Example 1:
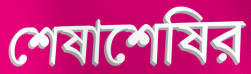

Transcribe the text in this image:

শেষাশেষির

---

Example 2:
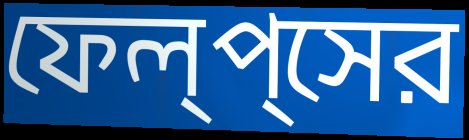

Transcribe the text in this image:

ফেল্‌প্‌সের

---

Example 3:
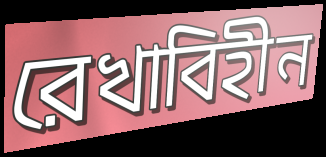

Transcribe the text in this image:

রেখাবিহীন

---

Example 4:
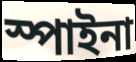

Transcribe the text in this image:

স্পাইনা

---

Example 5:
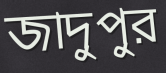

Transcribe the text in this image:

জাদুপুর